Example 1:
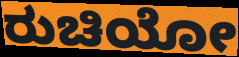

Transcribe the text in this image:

ರುಚಿಯೋ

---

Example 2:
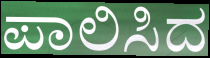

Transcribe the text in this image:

ಪಾಲಿಸಿದ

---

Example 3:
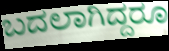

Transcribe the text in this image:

ಬದಲಾಗಿದ್ದರೂ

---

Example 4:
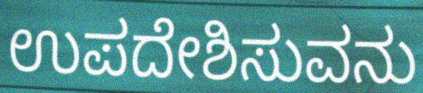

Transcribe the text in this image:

ಉಪದೇಶಿಸುವನು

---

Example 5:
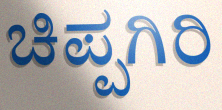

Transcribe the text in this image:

ಚಿಪ್ಪಗಿರಿ